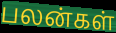
பலன்கள்